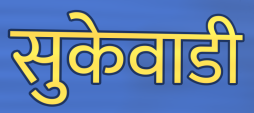
सुकेवाडी